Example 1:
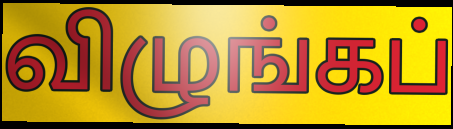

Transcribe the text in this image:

விழுங்கப்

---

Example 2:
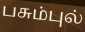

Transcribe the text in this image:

பசும்புல்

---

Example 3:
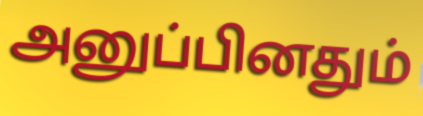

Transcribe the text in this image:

அனுப்பினதும்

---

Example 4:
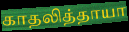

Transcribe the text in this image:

காதலித்தாயா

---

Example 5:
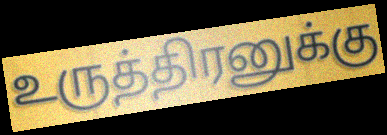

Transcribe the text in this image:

உருத்திரனுக்கு